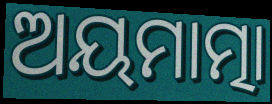
ଅୟମାତ୍ମା